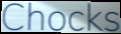
Chocks